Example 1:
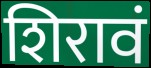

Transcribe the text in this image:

शिरावं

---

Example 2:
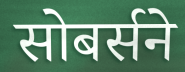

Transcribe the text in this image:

सोबर्सने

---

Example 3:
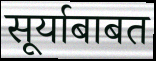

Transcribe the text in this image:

सूर्याबाबत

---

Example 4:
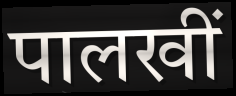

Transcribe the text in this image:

पालखीं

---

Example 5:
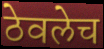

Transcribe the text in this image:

ठेवलेच